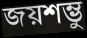
জয়শম্ভু